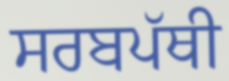
ਸਰਬਪੱਥੀ